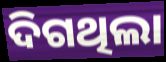
ଦିଗଥିଲା